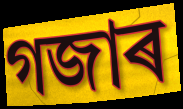
গজাৰ